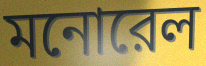
মনোরেল